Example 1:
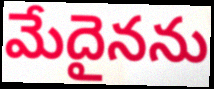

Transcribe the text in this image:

మేదైనను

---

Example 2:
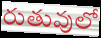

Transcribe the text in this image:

రుతువులో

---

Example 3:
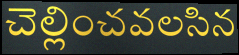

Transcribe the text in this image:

చెల్లించవలసిన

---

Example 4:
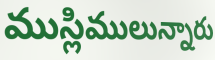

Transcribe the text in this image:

ముస్లిములున్నారు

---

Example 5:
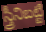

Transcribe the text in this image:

స్త్రీనిబట్టి